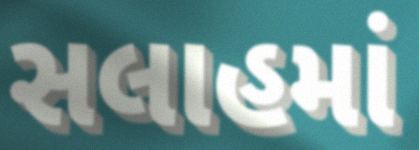
સલાહમાં